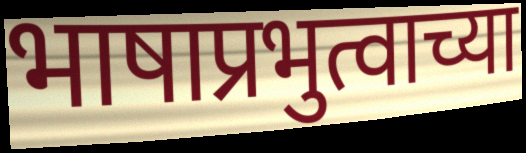
भाषाप्रभुत्वाच्या